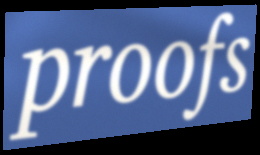
proofs